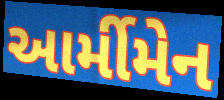
આર્મીમેન